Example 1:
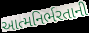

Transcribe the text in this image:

આત્મનિર્ભરતાની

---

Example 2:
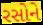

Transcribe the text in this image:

રસોને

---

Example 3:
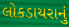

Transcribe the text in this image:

લોકડાયરાનું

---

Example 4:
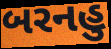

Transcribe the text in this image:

બરનહુ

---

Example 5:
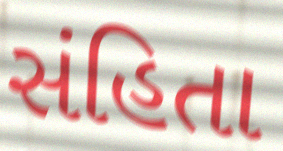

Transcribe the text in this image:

સંહિતા